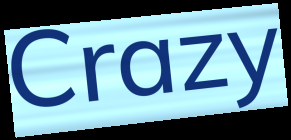
Crazy